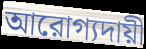
আরোগ্যদায়ী